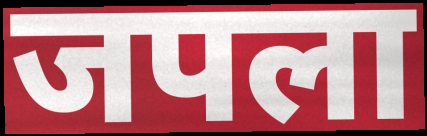
जपला